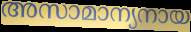
അസാമാന്യനായ